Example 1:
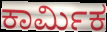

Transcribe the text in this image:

ಕಾರ್ಮಿಕ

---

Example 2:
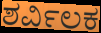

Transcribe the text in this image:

ಶರ್ವಿಲಕ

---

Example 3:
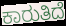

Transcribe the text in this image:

ಕಾರುತಿದೆ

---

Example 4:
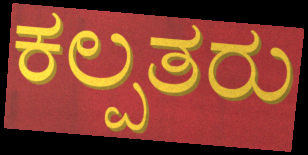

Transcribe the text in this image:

ಕಲ್ಪತರು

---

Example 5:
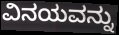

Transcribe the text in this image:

ವಿನಯವನ್ನು